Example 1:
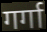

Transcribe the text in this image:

गर्गा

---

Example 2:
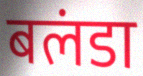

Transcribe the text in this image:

बलंडा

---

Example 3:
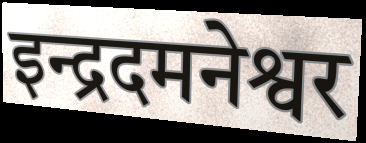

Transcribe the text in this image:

इन्द्रदमनेश्वर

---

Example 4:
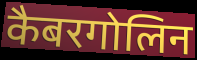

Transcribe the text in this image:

कैबरगोलिन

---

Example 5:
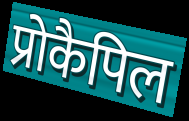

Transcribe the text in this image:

प्रोकैपिल